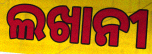
ଲଖାନୀ